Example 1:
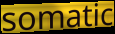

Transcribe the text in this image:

somatic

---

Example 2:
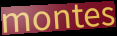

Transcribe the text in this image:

montes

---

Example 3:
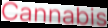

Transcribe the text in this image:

Cannabis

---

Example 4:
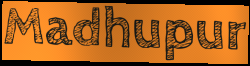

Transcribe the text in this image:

Madhupur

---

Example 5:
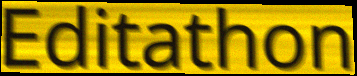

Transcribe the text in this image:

Editathon